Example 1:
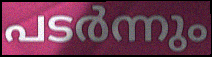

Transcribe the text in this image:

പടർന്നും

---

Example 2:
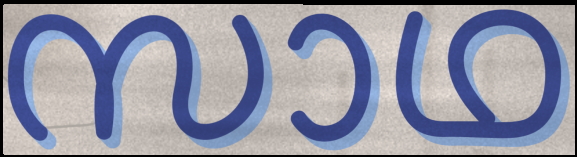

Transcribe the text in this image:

സാഥ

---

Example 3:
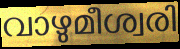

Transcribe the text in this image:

വാഴുമീശ്വരി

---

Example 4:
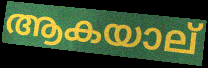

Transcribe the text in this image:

ആകയാല്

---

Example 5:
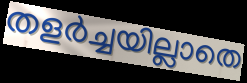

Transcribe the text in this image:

തളർച്ചയില്ലാതെ